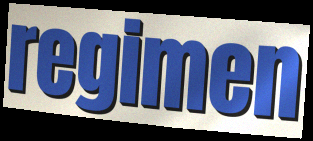
regimen